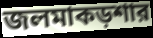
জলমাকড়শার